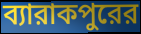
ব্যারাকপুরের